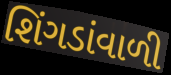
શિંગડાંવાળી